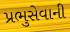
પ્રભુસેવાની